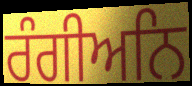
ਰੰਗੀਅਨਿ